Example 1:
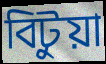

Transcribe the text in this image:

বিটুয়া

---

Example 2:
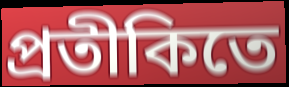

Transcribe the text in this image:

প্রতীকিতে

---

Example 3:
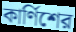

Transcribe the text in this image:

কার্ণিশের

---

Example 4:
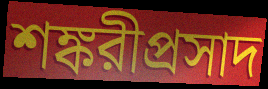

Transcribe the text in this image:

শঙ্করীপ্রসাদ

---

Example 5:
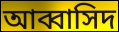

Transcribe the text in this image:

আব্বাসিদ